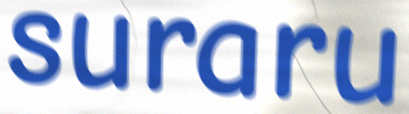
suraru